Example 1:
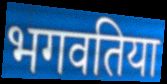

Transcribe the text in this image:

भगवतिया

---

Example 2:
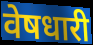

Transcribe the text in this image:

वेषधारी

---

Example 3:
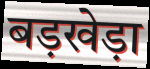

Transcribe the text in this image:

बड़खेड़ा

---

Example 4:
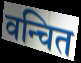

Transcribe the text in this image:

वन्चित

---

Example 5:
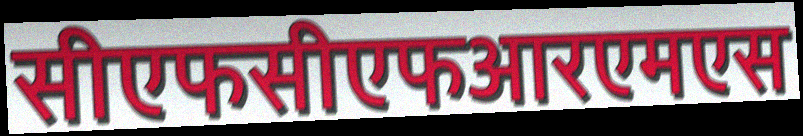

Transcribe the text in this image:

सीएफसीएफआरएमएस